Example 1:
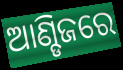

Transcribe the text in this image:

ଆଣ୍ଡିଜରେ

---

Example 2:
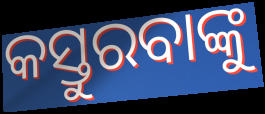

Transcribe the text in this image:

କସ୍ତୁରବାଙ୍କୁ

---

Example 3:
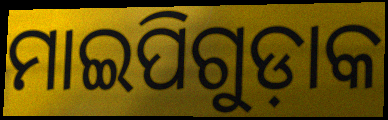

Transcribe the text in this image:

ମାଇପିଗୁଡ଼ାକ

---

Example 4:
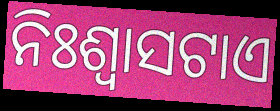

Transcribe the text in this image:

ନିଃଶ୍ଵାସଟାଏ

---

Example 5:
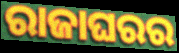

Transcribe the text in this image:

ରାଜାଘରର